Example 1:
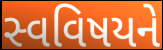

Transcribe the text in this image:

સ્વવિષયને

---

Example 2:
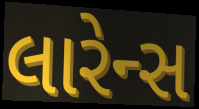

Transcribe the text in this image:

લારેન્સ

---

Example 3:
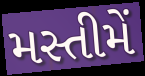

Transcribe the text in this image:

મસ્તીમેં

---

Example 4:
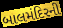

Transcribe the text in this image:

બાલમંદિરની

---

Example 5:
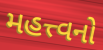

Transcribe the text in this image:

મહત્ત્વનો